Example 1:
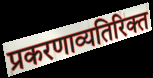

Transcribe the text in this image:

प्रकरणाव्यतिरिक्त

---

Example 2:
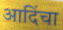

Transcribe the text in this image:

आदिंचा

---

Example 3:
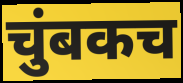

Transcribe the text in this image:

चुंबकच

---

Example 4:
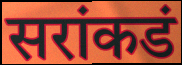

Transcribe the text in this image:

सरांकडं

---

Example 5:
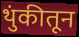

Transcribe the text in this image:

थुंकीतून